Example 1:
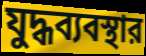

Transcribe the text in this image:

যুদ্ধব্যবস্থার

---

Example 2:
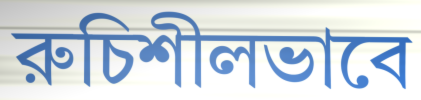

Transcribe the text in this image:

রুচিশীলভাবে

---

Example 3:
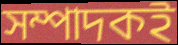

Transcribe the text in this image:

সম্পাদকই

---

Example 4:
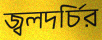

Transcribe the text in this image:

জ্বলদর্চির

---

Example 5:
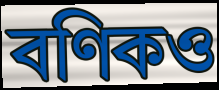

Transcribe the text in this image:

বণিকও